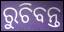
ରୁଚିବନ୍ତ